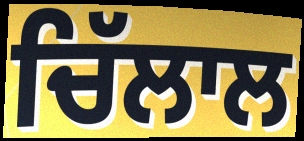
ਚਿੱਲਾਲ